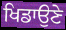
ਖਿਡਾਉਣੇ